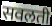
सवलती